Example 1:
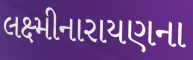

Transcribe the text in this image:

લક્ષ્મીનારાયણના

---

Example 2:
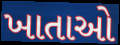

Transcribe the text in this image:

ખાતાઓ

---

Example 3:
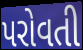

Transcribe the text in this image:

પરોવતી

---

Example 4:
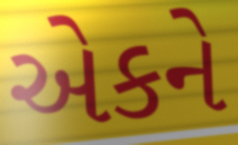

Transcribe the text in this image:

એકને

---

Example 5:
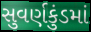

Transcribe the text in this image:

સુવર્ણકુંડમાં